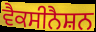
ਵੈਕਸੀਨੈਸ਼ਨ